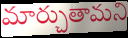
మార్చుతామని